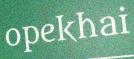
opekhai